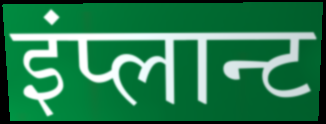
इंप्लान्ट